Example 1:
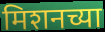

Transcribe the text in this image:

मिशनच्या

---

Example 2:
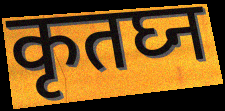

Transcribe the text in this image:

कृतघ्न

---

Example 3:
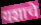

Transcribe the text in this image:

यशाचे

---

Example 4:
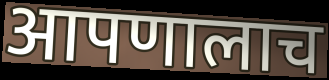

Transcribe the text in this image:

आपणालाच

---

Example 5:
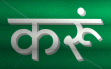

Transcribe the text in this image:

करूं